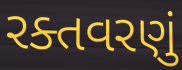
રક્તવરણું